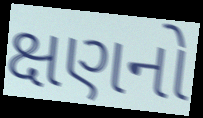
ક્ષણનો